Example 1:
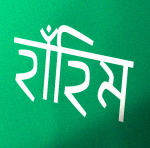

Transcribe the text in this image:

হাঁহিম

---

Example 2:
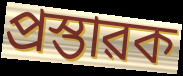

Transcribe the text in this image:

প্ৰস্তাৱক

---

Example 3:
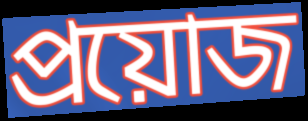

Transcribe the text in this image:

প্ৰয়োজ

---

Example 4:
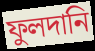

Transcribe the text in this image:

ফুলদানি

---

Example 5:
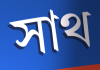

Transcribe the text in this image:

সাথ